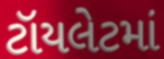
ટૉયલેટમાં